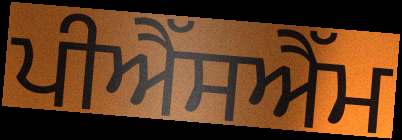
ਪੀਐੱਸਐੱਮ